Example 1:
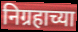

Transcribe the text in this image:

निग्रहाच्या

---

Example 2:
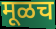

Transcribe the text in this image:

मूळच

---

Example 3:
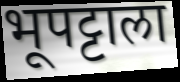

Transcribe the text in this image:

भूपट्टाला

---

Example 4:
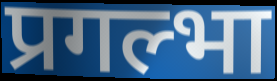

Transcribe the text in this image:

प्रगल्भा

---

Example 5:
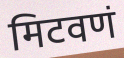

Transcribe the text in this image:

मिटवणं